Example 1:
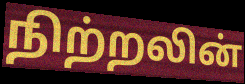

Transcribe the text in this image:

நிற்றலின்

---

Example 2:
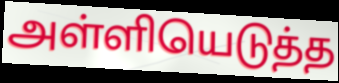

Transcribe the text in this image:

அள்ளியெடுத்த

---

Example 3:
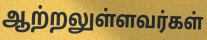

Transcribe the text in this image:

ஆற்றலுள்ளவர்கள்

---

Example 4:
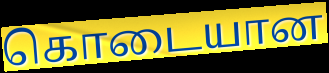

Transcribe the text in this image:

கொடையான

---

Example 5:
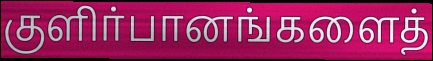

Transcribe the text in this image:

குளிர்பானங்களைத்